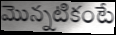
మొన్నటికంటే